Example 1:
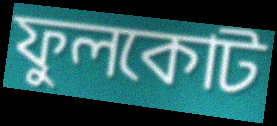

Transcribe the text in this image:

ফুলকোট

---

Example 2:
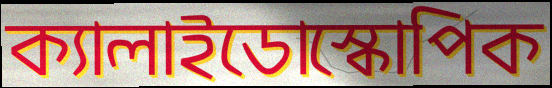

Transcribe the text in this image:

ক্যালাইডোস্কোপিক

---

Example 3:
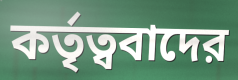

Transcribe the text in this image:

কর্তৃত্ববাদের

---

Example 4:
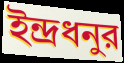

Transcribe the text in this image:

ইন্দ্রধনুর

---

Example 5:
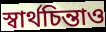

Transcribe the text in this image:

স্বার্থচিন্তাও